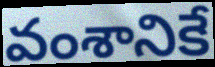
వంశానికే